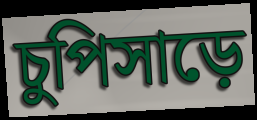
চুপিসাড়ে